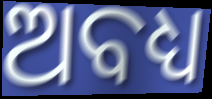
ଅବଧ୍ୟ